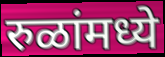
रुळांमध्ये